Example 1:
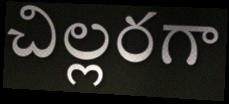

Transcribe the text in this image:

చిల్లరగా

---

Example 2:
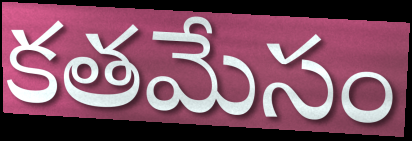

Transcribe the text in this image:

కతమేసం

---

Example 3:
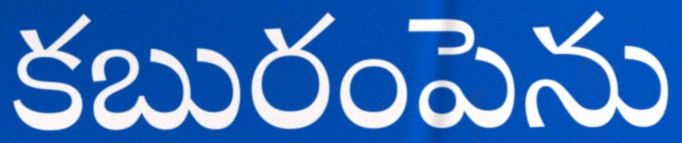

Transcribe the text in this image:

కబురంపెను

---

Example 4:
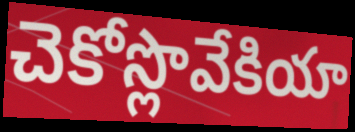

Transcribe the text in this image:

చెకోస్లొవేకియా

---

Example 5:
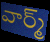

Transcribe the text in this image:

వార్మ్